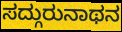
ಸದ್ಗುರುನಾಥನ